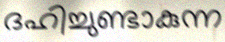
ദഹിച്ചുണ്ടാകുന്ന